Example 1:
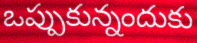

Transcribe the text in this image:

ఒప్పుకున్నందుకు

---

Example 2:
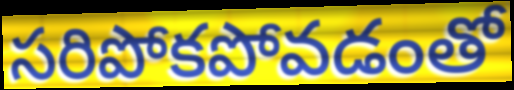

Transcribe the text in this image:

సరిపోకపోవడంతో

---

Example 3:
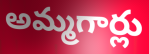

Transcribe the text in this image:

అమ్మగార్లు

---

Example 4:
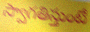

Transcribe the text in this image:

స్వాగతిస్తుంటే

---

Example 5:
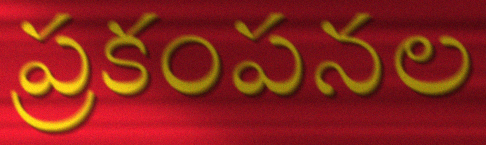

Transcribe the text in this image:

ప్రకంపనల